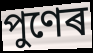
পুণেৰ